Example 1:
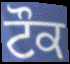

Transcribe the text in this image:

ਟੌਕ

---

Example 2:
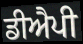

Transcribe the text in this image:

ਡੀਐਪੀ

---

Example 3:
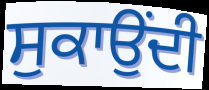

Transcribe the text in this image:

ਸੁਕਾਉਂਦੀ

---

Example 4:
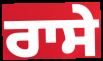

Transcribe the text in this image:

ਰਾਸੇ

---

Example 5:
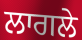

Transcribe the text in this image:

ਲਾਗਲੇ